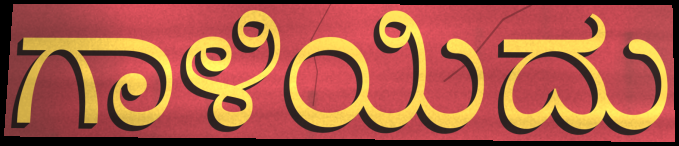
ಗಾಳಿಯಿದು